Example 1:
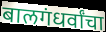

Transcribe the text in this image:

बालगंधर्वांचा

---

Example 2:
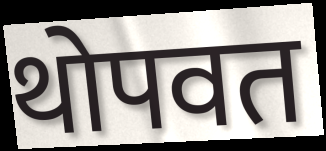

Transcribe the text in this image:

थोपवत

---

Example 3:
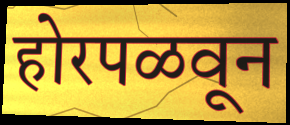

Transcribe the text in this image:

होरपळवून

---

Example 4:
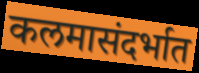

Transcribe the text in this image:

कलमासंदर्भात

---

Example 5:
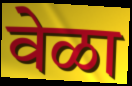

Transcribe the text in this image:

वेळा